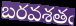
బరవశతఁ